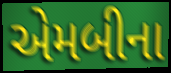
એમબીના